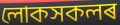
লোকসকলৰ